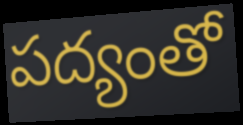
పద్యంతో